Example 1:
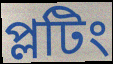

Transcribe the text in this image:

প্লটিং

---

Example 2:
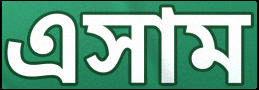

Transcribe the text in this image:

এসাম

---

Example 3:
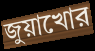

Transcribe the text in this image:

জুয়াখোর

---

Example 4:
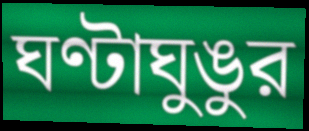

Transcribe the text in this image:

ঘণ্টাঘুঙুর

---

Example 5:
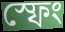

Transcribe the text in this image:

স্ফেং